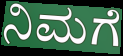
ನಿಮಗೆ